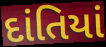
દાંતિયાં